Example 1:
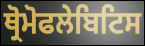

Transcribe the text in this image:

ਥ੍ਰੋਮੋਫਲੇਬਿਟਿਸ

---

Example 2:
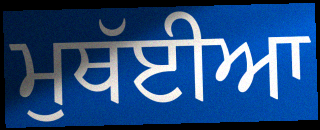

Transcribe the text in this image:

ਮੁਥੱਈਆ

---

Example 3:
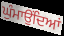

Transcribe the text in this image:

ਘੁੰਮਾਉਂਦਿਆਂ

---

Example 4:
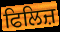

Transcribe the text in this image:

ਫਿਲਿਜ਼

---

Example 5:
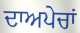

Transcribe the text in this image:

ਦਾਅਪੇਚਾਂ